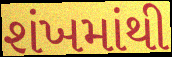
શંખમાંથી